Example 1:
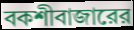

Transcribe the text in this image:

বকশীবাজারের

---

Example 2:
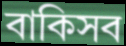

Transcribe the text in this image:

বাকিসব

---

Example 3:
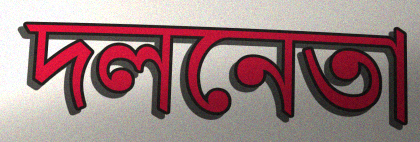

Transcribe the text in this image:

দলনেতা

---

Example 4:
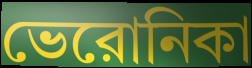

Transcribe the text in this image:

ভেরোনিকা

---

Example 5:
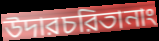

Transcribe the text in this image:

উদারচরিতানাং